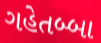
ગહેતબ્બા